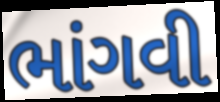
ભાંગવી